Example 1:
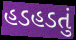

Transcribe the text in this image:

હડહડતું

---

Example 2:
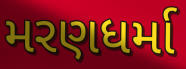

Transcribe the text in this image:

મરણધર્મા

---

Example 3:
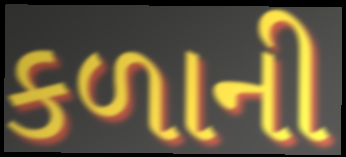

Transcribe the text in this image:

કળાની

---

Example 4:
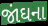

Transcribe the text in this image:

જાંઘના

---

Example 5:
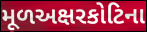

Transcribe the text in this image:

મૂળઅક્ષરકોટિના